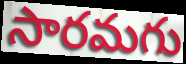
సారమగు